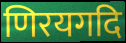
णिरयगदि